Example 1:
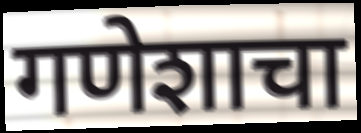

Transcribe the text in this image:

गणेशाचा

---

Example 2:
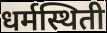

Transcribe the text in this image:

धर्मस्थिती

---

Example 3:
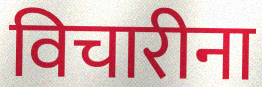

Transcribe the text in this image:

विचारीना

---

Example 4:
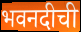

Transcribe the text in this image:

भवनदीची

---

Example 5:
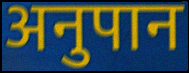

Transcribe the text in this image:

अनुपान